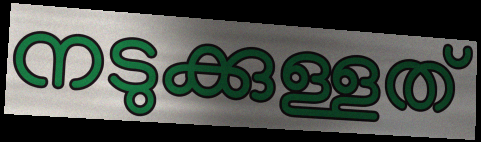
നടുക്കുള്ളത്